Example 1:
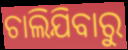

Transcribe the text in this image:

ଚାଲିଯିବାରୁ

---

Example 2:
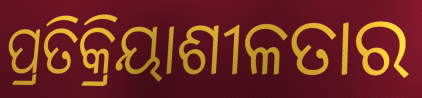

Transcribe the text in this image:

ପ୍ରତିକ୍ରିୟାଶୀଳତାର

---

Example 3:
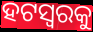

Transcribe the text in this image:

ହଟସ୍ଵରକୁ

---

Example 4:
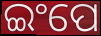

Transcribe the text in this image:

ଇଂପେ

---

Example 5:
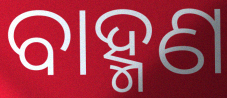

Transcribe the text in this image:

ବାହ୍ମଣ